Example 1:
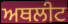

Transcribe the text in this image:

ਅਥਲੀਟ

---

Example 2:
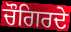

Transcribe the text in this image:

ਚੌਗਿਰਦੇ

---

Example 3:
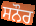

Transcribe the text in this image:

ਸਨੌਰ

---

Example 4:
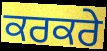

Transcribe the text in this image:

ਕਰਕਰੇ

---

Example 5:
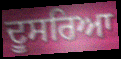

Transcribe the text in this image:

ਦੂਸਰਿਆ